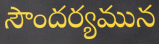
సౌందర్యమున